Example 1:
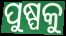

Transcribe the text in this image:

ପୁଷ୍ପକୁ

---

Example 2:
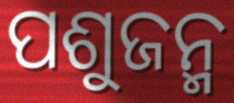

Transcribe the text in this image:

ପଶୁଜନ୍ମ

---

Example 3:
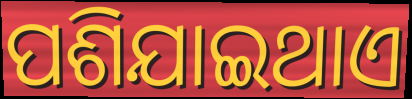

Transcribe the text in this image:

ପଶିଯାଇଥାଏ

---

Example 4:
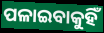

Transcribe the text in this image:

ପଳାଇବାକୁହିଁ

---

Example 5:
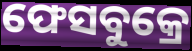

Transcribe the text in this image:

ଫେସବୁକ୍ରେ